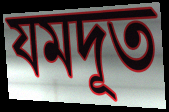
যমদূত